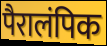
पैरालंपिक